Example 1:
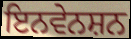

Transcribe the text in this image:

ਇਨਵੇਨਸ਼ਨ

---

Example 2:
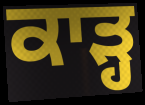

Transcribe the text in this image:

ਕਾੜ੍ਹ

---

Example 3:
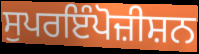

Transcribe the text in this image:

ਸੁਪਰਇੰਪੋਜ਼ੀਸ਼ਨ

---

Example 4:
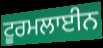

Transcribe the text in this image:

ਟੂਰਮਲਾਈਨ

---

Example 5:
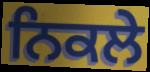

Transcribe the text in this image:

ਨਿਕਲੇ